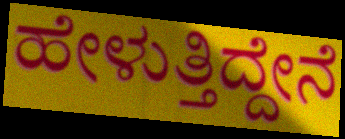
ಹೇಳುತ್ತಿದ್ದೇನೆ